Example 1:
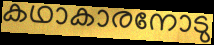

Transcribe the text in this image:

കഥാകാരനോടു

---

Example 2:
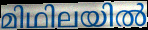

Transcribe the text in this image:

മിഥിലയിൽ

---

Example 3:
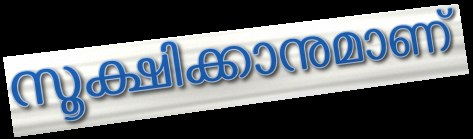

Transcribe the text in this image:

സൂക്ഷിക്കാനുമാണ്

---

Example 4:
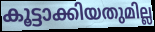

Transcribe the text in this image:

കൂട്ടാക്കിയതുമില്ല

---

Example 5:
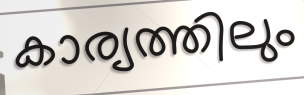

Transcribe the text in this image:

കാര്യത്തിലും